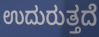
ಉದುರುತ್ತದೆ